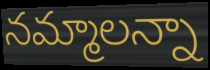
నమ్మాలన్నా